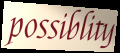
possiblity